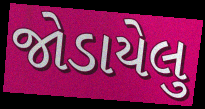
જોડાયેલુ